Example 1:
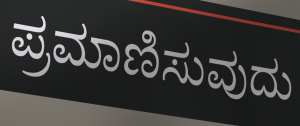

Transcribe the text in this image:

ಪ್ರಮಾಣಿಸುವುದು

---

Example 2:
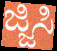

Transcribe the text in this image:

ಜ್ಜಿಸಿ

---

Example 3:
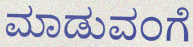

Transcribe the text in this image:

ಮಾಡುವಂಗೆ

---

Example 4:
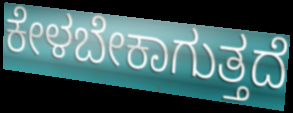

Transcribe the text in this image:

ಕೇಳಬೇಕಾಗುತ್ತದೆ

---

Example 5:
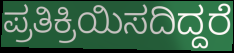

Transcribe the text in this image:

ಪ್ರತಿಕ್ರಿಯಿಸದಿದ್ದರೆ